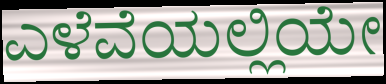
ಎಳೆವೆಯಲ್ಲಿಯೇ